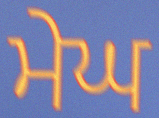
ਮੇਘ